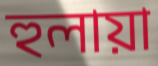
হুলায়া